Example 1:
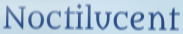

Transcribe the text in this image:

Noctilucent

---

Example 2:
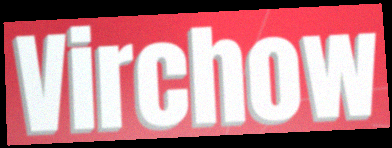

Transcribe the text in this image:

Virchow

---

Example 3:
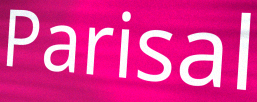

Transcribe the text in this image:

Parisal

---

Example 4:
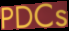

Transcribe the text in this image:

PDCs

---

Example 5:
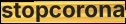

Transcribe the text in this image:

stopcorona